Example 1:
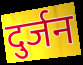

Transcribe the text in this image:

दुर्जन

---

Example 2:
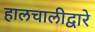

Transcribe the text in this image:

हालचालीद्वारे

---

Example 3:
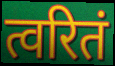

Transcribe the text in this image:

त्वरितं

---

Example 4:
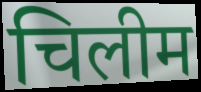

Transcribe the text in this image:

चिलीम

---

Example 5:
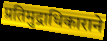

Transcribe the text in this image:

प्रतिमुद्राधिकाराने